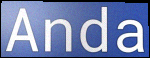
Anda